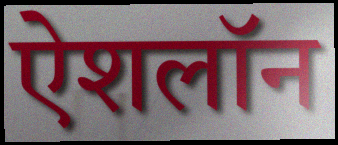
ऐशलॉन